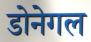
डोनेगल